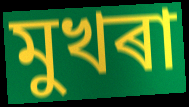
মুখৰা